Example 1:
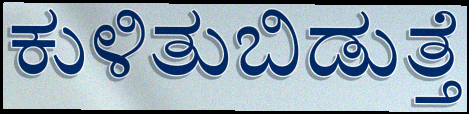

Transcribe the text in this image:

ಕುಳಿತುಬಿಡುತ್ತೆ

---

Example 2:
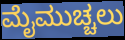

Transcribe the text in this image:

ಮೈಮುಚ್ಚಲು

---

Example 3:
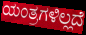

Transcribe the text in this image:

ಯಂತ್ರಗಳಿಲ್ಲದೆ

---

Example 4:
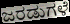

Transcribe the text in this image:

ಜರಡುಗಳೆ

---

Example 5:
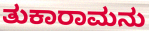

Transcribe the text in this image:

ತುಕಾರಾಮನು